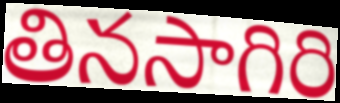
తినసాగిరి